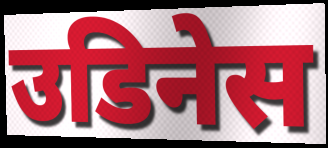
उडिनेस